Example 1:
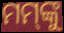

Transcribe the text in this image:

ମମ୍‌ଙ୍କୁ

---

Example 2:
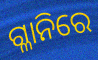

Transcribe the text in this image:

ଗ୍ଳାନିରେ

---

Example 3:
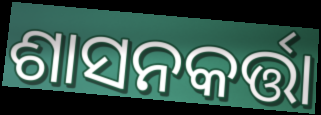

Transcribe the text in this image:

ଶାସନକର୍ତ୍ତା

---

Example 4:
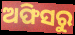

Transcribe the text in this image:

ଅଫିସରୁ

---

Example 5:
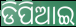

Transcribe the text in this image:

ଡିପିଆଇ